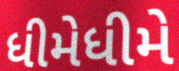
ધીમેધીમે